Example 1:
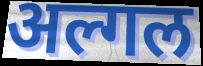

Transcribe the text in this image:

अल्गल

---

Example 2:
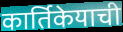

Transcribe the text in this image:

कार्तिकेयाची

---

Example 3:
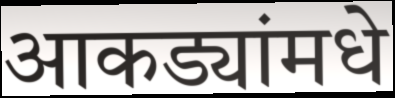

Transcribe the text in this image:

आकड्यांमधे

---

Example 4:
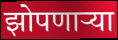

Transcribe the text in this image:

झोपणाऱ्या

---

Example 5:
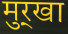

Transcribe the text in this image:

मुर्खा